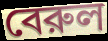
বেরুল